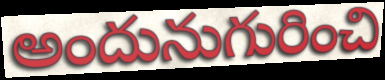
అందునుగురించి